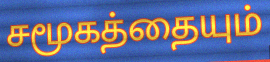
சமூகத்தையும்